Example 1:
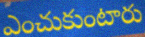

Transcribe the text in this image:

ఎంచుకుంటారు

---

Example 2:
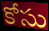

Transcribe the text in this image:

కోసు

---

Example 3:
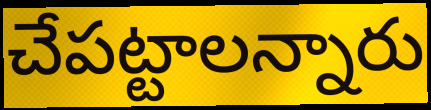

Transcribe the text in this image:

చేపట్టాలన్నారు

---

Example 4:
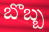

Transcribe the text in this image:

బొబ్బ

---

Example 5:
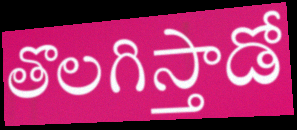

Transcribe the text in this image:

తొలగిస్తాడో